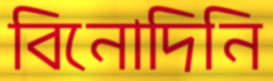
বিনোদিনি